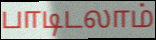
பாடிடலாம்